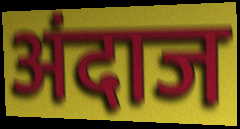
अंदाज